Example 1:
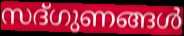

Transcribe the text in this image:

സദ്ഗുണങ്ങൾ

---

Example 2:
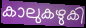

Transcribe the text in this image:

കാലുകഴുകി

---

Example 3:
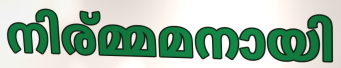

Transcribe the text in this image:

നിര്മ്മമനായി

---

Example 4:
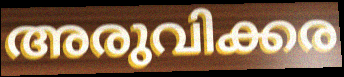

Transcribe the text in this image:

അരുവിക്കര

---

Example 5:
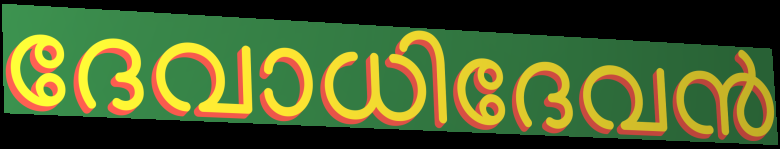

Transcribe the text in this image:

ദേവാധിദേവൻ